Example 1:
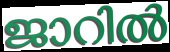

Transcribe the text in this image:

ജാറിൽ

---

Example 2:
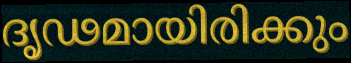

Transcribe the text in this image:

ദൃഢമായിരിക്കും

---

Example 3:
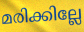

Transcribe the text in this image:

മരിക്കില്ലേ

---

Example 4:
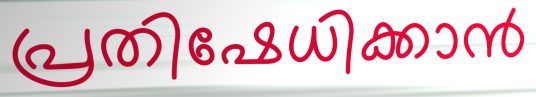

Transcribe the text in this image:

പ്രതിഷേധിക്കാൻ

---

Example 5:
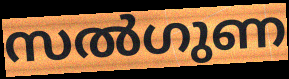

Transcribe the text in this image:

സൽഗുണ